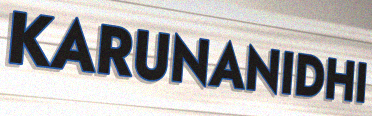
KARUNANIDHI